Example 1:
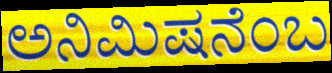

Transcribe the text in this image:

ಅನಿಮಿಷನೆಂಬ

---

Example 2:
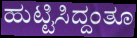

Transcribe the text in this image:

ಹುಟ್ಟಿಸಿದ್ದಂತೂ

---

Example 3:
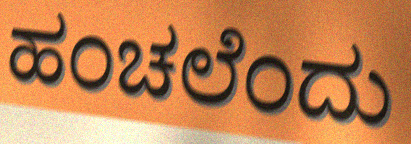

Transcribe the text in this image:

ಹಂಚಲೆಂದು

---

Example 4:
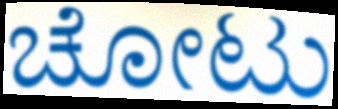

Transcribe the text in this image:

ಚೋಟು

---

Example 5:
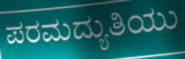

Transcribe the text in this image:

ಪರಮದ್ಯುತಿಯು